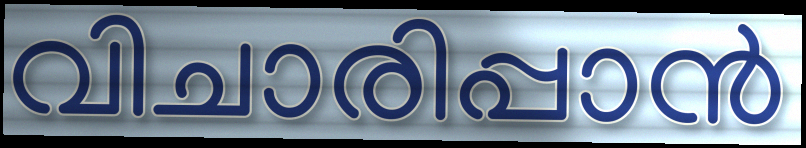
വിചാരിപ്പാൻ